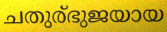
ചതുര്ഭുജയായ